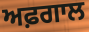
ਅਫ਼ਗਾਲ